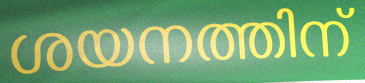
ശയനത്തിന്